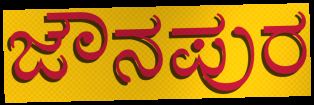
ಜೌನಪುರ